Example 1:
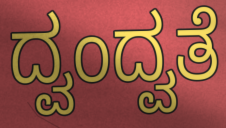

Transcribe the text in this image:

ದ್ವಂದ್ವತೆ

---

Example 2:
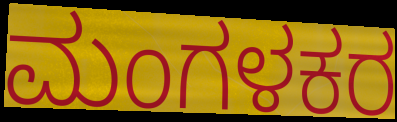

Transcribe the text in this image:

ಮಂಗಳಕರ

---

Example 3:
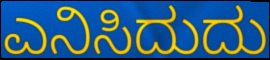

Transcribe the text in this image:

ಎನಿಸಿದುದು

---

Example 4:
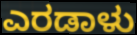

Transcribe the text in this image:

ಎರಡಾಳು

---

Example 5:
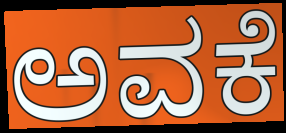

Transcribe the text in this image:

ಅವಕೆ